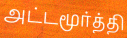
அட்டமூர்த்தி